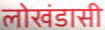
लोखंडासी